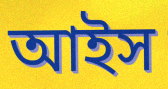
আইস